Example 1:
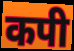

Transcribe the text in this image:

कपी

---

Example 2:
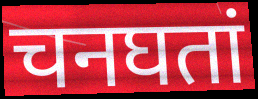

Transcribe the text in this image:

चनघतां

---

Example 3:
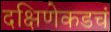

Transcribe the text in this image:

दक्षिणेकडचं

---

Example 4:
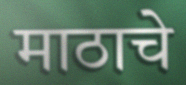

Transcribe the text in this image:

माठाचे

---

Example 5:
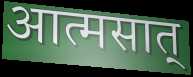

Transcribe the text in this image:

आत्मसात्